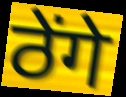
ठेंगे